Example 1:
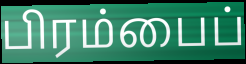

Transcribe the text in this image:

பிரம்பைப்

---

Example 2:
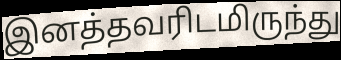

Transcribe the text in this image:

இனத்தவரிடமிருந்து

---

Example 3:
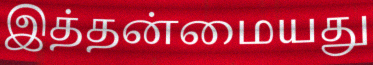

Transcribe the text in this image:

இத்தன்மையது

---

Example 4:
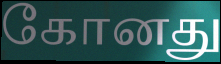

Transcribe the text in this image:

கோனது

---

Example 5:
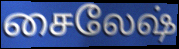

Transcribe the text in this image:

சைலேஷ்